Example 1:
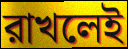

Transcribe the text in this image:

রাখলেই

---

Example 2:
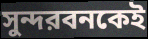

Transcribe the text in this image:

সুন্দরবনকেই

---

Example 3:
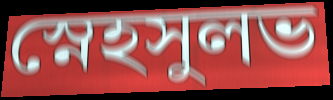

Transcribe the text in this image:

স্নেহসুলভ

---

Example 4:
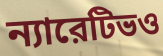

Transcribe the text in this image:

ন্যারেটিভও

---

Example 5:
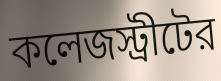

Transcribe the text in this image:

কলেজস্ট্রীটের